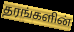
தரங்களின்